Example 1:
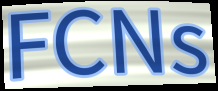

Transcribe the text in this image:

FCNs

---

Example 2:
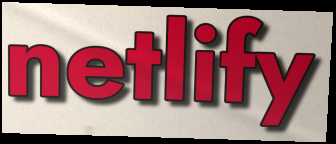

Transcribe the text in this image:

netlify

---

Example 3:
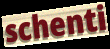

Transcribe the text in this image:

schenti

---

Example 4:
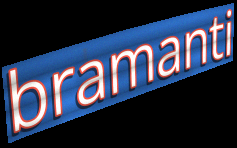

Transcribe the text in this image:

bramanti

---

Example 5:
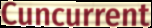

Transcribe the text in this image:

Cuncurrent